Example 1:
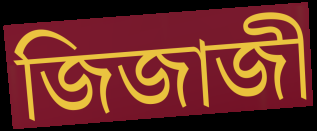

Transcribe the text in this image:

জিজাজী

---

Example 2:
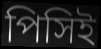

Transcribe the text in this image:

পিসিই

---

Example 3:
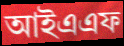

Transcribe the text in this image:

আইএএফ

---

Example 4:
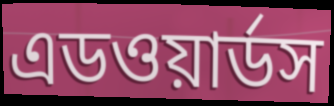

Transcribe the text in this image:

এডওয়ার্ডস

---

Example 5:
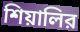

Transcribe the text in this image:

শিয়ালির